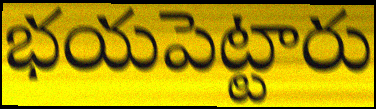
భయపెట్టారు